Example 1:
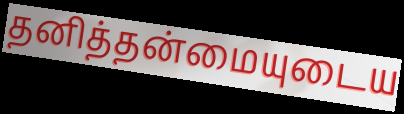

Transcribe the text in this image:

தனித்தன்மையுடைய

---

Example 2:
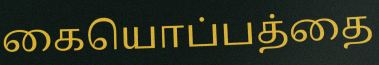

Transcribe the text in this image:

கையொப்பத்தை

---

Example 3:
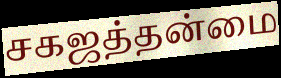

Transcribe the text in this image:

சகஜத்தன்மை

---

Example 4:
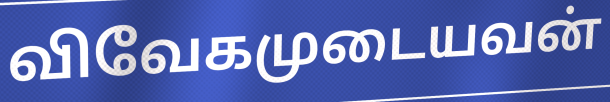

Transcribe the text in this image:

விவேகமுடையவன்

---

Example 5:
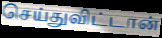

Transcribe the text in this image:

செய்துவிட்டான்